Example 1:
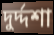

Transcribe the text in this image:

দুর্দ্দশা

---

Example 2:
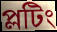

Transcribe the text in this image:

প্লটিং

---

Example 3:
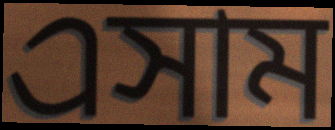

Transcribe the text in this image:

এসাম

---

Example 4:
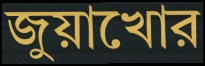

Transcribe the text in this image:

জুয়াখোর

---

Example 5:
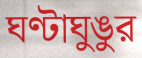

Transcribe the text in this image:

ঘণ্টাঘুঙুর